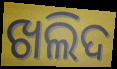
ଖଲିଦ